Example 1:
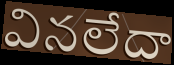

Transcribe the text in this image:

వినలేదా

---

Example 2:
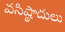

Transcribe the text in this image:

వసిష్ఠాదులు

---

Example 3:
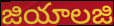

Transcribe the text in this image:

జియాలజి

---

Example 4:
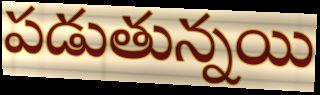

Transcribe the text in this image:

పడుతున్నయి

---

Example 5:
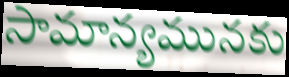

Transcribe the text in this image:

సామాన్యమునకు